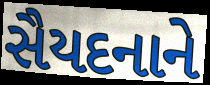
સૈયદનાને